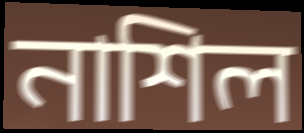
নাশিল